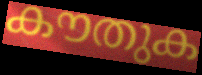
കൗതുക